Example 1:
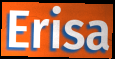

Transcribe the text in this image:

Erisa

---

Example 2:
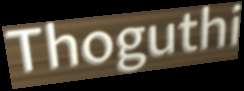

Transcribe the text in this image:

Thoguthi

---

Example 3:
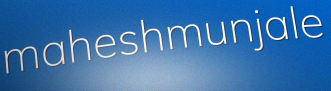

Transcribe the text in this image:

maheshmunjale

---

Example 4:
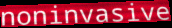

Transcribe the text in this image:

noninvasive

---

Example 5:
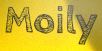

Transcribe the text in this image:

Moily